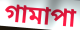
গামাপা